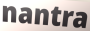
nantra